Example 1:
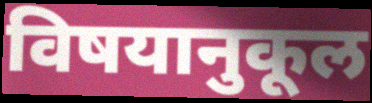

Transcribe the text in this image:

विषयानुकूल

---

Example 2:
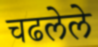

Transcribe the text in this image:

चढलेले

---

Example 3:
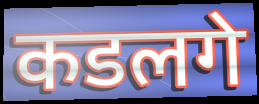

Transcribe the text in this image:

कडलगे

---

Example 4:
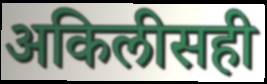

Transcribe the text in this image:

अकिलीसही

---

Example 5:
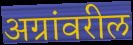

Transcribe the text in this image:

अग्रांवरील